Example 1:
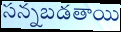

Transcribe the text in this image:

సన్నబడతాయి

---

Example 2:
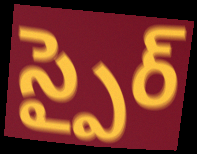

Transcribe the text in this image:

స్పైర్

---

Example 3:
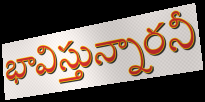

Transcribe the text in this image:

భావిస్తున్నారనీ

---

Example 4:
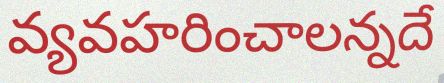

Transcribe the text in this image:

వ్యవహరించాలన్నదే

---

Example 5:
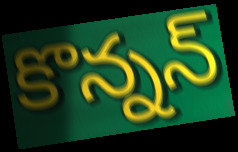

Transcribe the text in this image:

కొన్నన్